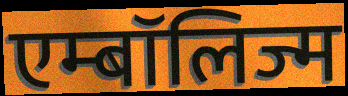
एम्बॉलिज्म